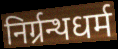
निर्ग्रन्थधर्म